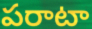
పరాటా